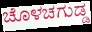
ಚೊಳಚಗುಡ್ಡ